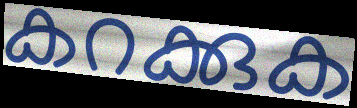
കറക്കുക